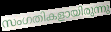
സംഗതികളായിരുന്നു